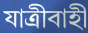
যাত্রীবাহী